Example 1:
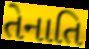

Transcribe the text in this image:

તેનાતિ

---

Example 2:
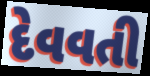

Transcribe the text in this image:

દેવવતી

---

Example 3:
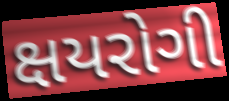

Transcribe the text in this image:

ક્ષયરોગી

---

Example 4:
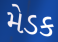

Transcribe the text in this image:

મેડક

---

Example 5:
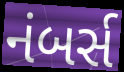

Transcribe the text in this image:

નંબર્સ